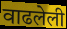
वाढलेली